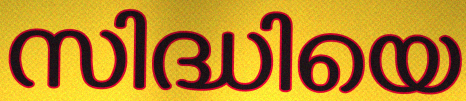
സിദ്ധിയെ